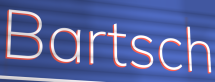
Bartsch